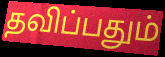
தவிப்பதும்